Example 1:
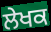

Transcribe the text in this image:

ਲੇਖਕ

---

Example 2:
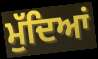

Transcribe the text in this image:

ਮੁੱਦਿਆਂ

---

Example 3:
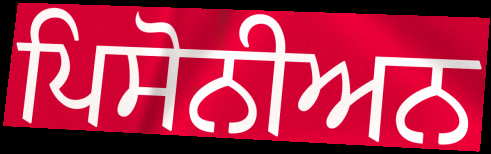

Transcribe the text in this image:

ਪਿਸੋਨੀਅਨ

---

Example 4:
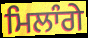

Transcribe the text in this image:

ਮਿਲਾੰਗੇ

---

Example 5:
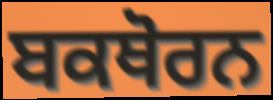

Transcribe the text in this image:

ਬਕਥੋਰਨ